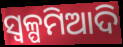
ସ୍ବଳ୍ପମିଆଦି